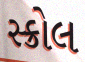
સ્ક્રોલ